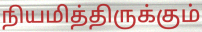
நியமித்திருக்கும்